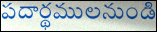
పదార్థములనుండి